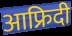
आफ्रिदी